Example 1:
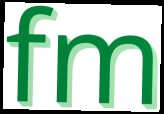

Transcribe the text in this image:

fm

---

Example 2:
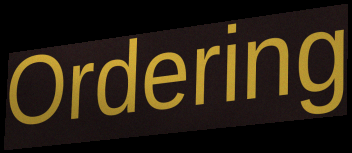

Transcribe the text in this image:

Ordering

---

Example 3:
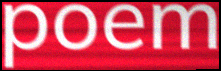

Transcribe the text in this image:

poem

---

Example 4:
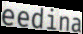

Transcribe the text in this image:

eedina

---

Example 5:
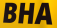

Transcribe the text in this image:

BHA